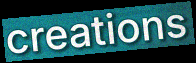
creations